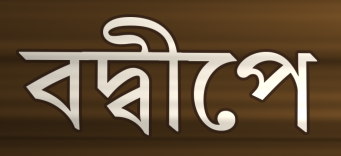
বদ্বীপে